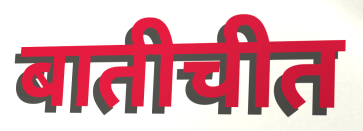
बातीचीत